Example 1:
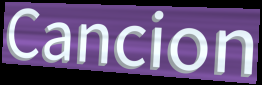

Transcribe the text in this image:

Cancion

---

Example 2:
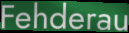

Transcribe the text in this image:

Fehderau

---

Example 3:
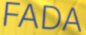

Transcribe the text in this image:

FADA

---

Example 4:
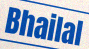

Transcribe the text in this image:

Bhailal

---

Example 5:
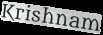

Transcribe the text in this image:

Krishnam